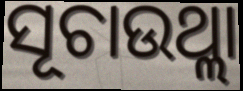
ସୂଚାଉଥ୍ଲା